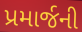
પ્રમાર્જની